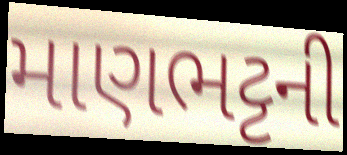
માણભટ્ટની